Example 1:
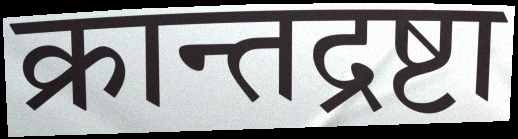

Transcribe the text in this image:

क्रान्तद्रष्टा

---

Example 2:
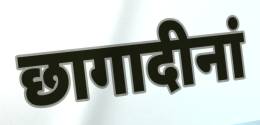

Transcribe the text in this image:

छागादीनां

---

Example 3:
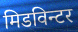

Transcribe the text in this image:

मिडविन्टर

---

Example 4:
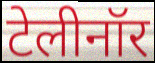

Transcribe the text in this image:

टेलीनॉर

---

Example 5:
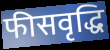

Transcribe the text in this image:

फीसवृद्धि